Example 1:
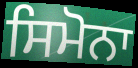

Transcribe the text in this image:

ਸਿਮੋਨਾ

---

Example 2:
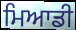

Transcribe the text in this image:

ਮਿਆਡੀ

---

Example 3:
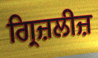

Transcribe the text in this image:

ਗ੍ਰਿਜ਼ਲੀਜ਼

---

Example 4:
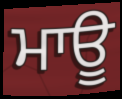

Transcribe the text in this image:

ਮਾਊ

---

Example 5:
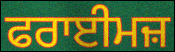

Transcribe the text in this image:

ਫਰਾਈਮਜ਼